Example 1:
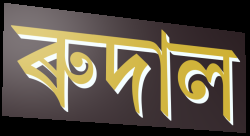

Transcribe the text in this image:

ৰুদাল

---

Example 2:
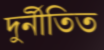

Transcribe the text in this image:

দুৰ্নীতিত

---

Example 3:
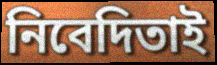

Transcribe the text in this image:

নিবেদিতাই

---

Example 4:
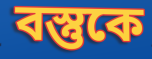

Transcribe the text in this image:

বস্তুকে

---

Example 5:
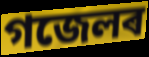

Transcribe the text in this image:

গজেলৰ